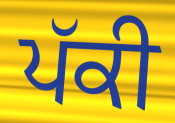
ਪੱਕੀ